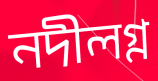
নদীলগ্ন